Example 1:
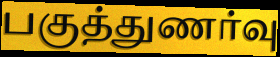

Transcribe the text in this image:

பகுத்துணர்வு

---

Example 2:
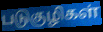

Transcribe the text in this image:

படுகுழிகள்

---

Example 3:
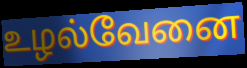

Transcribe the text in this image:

உழல்வேனை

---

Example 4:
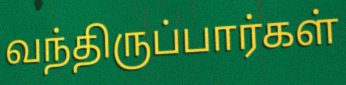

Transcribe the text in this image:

வந்திருப்பார்கள்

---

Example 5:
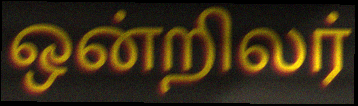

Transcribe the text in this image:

ஒன்றிலர்